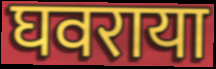
घवराया